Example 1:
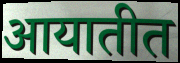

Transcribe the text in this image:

आयातीत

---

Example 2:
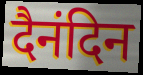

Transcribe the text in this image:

दैनंदिन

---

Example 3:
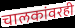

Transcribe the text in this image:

चालकांवरही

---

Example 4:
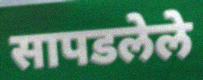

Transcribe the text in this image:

सापडलेले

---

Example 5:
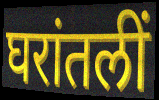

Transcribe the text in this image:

घरांतलीं